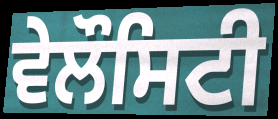
ਵੇਲੌਸਿਟੀ